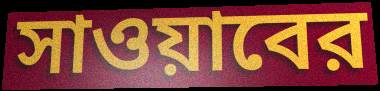
সাওয়াবের